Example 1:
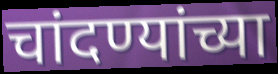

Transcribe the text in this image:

चांदण्यांच्या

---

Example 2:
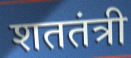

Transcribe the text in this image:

शततंत्री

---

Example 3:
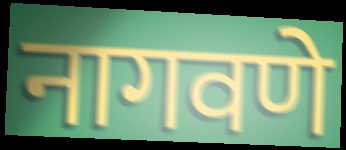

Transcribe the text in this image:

नागवणे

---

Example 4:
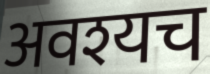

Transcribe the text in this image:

अवश्यच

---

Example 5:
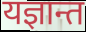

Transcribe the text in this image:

यज्ञान्त